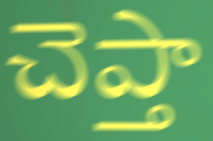
చెప్తా